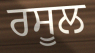
ਰਸੂਲ